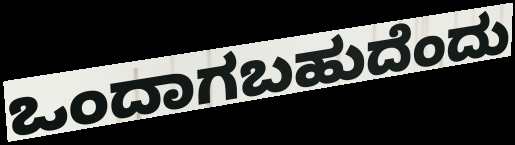
ಒಂದಾಗಬಹುದೆಂದು